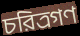
চরিত্রগণ